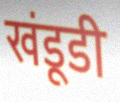
खंडूडी